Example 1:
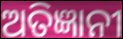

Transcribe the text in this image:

ଅତିଜ୍ଞାନୀ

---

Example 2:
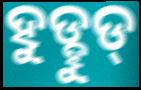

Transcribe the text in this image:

ହୁଡ୍ହୁଡ୍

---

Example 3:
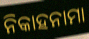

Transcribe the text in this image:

ନିକାହନାମା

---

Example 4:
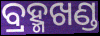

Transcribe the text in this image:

ବ୍ରହ୍ମଖଣ୍ଡ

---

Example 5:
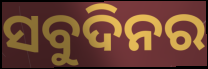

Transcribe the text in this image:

ସବୁଦିନର